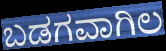
ಬಡಗವಾಗಿಲ